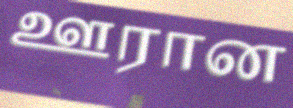
ஊரான